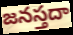
జనస్తదా